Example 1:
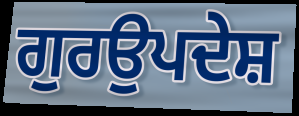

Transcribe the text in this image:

ਗੁਰਉਪਦੇਸ਼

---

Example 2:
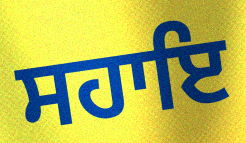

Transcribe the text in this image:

ਸਹਾਇ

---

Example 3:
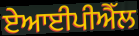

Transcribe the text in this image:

ਏਆਈਪੀਐੱਲ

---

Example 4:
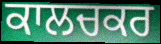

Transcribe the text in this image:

ਕਾਲਚਕਰ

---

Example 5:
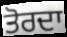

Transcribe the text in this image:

ਤੋਰਦਾ